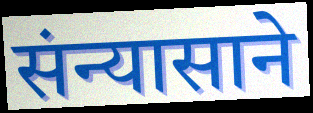
संन्यासाने